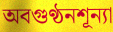
অবগুণ্ঠনশূন্যা